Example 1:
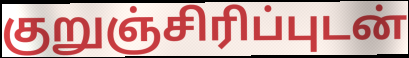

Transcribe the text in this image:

குறுஞ்சிரிப்புடன்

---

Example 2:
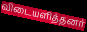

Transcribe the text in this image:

விடையளித்தனர்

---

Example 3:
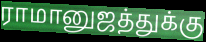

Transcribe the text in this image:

ராமானுஜத்துக்கு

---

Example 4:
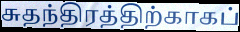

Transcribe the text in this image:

சுதந்திரத்திற்காகப்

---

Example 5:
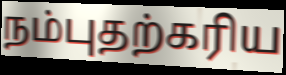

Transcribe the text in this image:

நம்புதற்கரிய